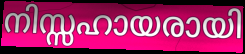
നിസ്സഹായരായി